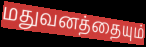
மதுவனத்தையும்